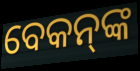
ବେକନ୍‌ଙ୍କ